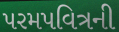
પરમપવિત્રની